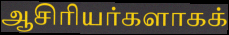
ஆசிரியர்களாகக்